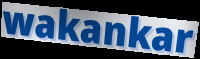
wakankar